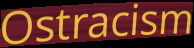
Ostracism